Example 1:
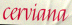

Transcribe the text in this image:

cerviana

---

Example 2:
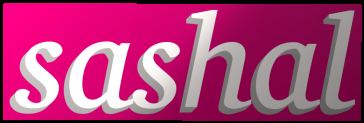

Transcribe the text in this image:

sashal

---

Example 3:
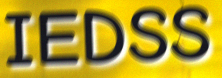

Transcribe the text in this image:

IEDSS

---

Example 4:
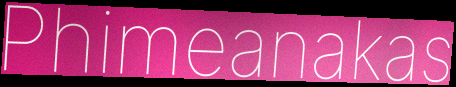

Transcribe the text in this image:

Phimeanakas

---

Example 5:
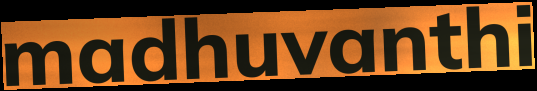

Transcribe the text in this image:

madhuvanthi